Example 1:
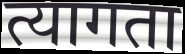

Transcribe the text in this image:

त्यागता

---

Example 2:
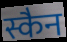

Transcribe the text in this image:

स्‍कैन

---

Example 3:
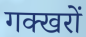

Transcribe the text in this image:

गक्खरों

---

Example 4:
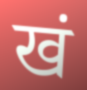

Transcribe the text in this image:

खं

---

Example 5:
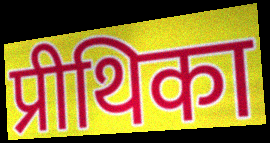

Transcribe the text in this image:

प्रीथिका